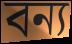
বন্য